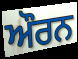
ਔਰਨ